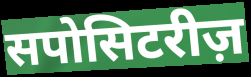
सपोसिटरीज़